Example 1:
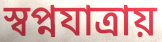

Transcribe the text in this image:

স্বপ্নযাত্রায়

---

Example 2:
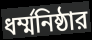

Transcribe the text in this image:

ধর্ম্মনিষ্ঠার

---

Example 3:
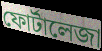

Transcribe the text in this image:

ফোর্টালেজা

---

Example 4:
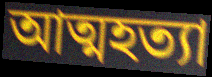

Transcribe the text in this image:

আত্মহত্যা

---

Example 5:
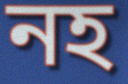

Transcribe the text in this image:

নহ